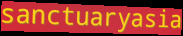
sanctuaryasia